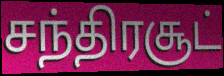
சந்திரசூட்